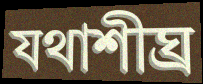
যথাশীঘ্র